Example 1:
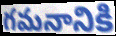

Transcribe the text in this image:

గమనానికి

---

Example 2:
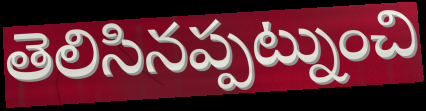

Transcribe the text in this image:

తెలిసినప్పట్నుంచి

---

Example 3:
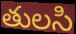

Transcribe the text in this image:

తులసి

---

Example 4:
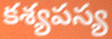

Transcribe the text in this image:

కశ్యపస్య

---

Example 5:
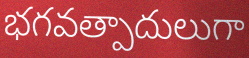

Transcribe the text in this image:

భగవత్పాదులుగా